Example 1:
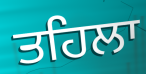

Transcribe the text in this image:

ਤਹਿਲਾ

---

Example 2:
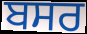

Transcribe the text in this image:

ਬਸਰ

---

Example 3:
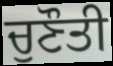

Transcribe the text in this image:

ਚੁਣੌਤੀ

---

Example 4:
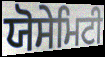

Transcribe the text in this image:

ਯੋਸੇਮਿਟੀ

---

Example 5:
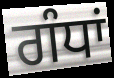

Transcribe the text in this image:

ਗੰਧਾਂ